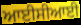
ਆਈਸੀਆਈ